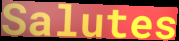
Salutes